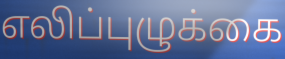
எலிப்புழுக்கை